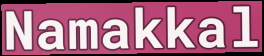
Namakkal